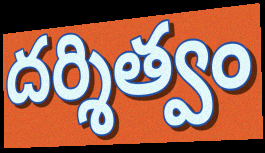
దర్శిత్వం